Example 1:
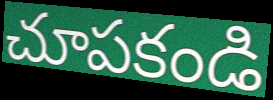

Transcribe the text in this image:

చూపకండి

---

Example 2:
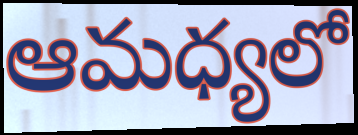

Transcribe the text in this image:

ఆమధ్యలో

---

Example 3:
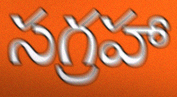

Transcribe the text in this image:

సగ్రహా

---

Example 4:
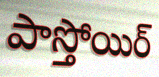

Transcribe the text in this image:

పాస్తోయిర్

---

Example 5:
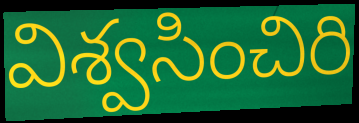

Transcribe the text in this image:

విశ్వసించిరి